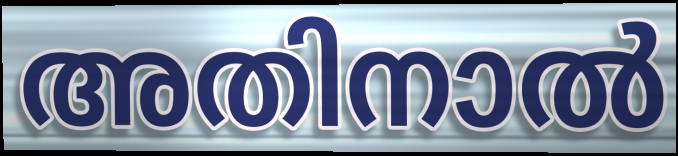
അതിനാൽ